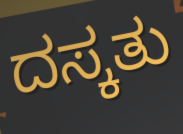
ದಸ್ಕತು